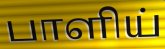
பாளிய்